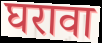
घरावा